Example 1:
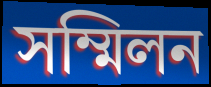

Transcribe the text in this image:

সম্মিলন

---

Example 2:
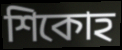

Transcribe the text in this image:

শিকোহ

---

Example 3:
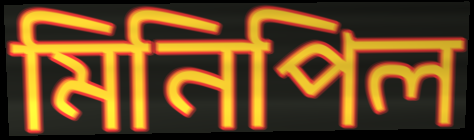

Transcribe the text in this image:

মিনিপিল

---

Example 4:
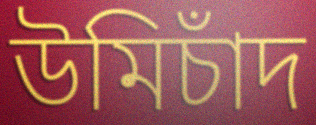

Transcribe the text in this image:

উমিচাঁদ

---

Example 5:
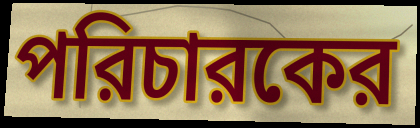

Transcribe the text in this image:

পরিচারকের